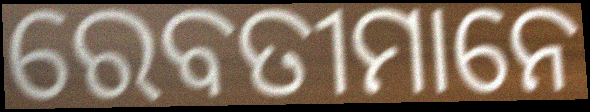
ରେବତୀମାନେ